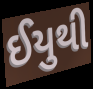
ઈયુથી